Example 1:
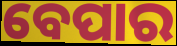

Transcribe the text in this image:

ବେପାର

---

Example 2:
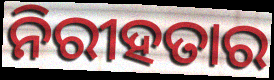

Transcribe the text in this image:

ନିରୀହତାର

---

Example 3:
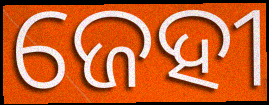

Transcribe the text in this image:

ଜେହୀ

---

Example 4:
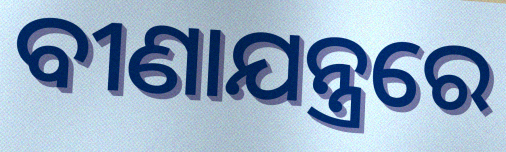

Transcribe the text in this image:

ବୀଣାଯନ୍ତ୍ରରେ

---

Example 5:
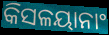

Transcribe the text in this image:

କିସଳୟାନାଂ